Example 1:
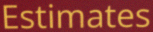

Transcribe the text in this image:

Estimates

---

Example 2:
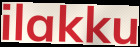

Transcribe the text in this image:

ilakku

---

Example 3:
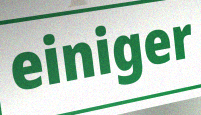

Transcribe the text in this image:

einiger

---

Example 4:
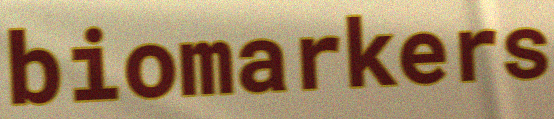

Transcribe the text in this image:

biomarkers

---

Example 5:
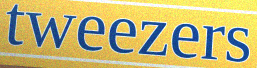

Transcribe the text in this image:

tweezers